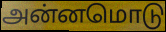
அன்னமொடு